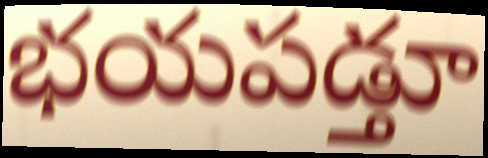
భయపడ్తూ